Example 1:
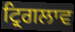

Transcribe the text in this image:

ਟ੍ਰਿਗਲਾਵ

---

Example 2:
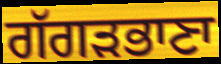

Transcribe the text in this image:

ਗੱਗੜਭਾਣਾ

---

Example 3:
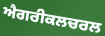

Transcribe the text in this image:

ਐਗਰੀਕਲਚਰਲ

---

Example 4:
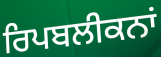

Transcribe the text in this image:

ਰਿਪਬਲੀਕਨਾਂ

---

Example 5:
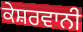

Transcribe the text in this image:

ਕੇਸ਼ਰਵਾਨੀ